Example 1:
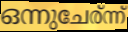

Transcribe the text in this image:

ഒന്നുചേര്ന്ന്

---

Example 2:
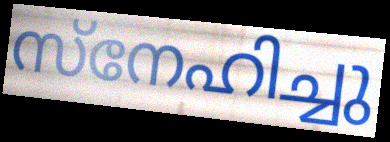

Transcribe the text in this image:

സ്നേഹിച്ചു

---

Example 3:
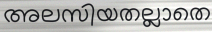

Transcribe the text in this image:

അലസിയതല്ലാതെ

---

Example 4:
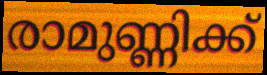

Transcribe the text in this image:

രാമുണ്ണിക്ക്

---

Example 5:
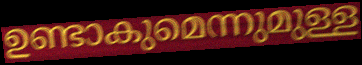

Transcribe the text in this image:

ഉണ്ടാകുമെന്നുമുള്ള